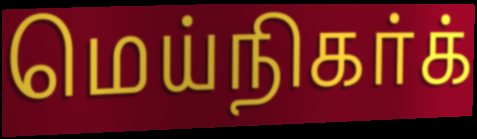
மெய்நிகர்க்